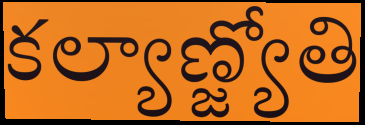
కల్యాణ్జ్యోతి